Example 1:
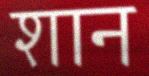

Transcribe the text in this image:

शान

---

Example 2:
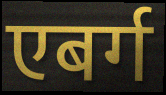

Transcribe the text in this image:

एबर्ग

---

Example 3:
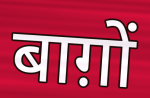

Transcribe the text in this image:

बाग़ों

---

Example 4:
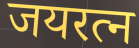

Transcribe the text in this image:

जयरत्न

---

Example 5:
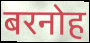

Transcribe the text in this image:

बरनोह